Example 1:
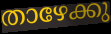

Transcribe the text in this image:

താഴേക്കു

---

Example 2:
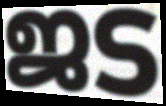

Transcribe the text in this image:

ജട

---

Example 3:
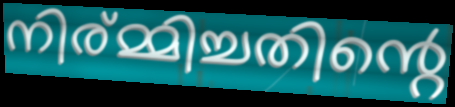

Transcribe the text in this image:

നിര്മ്മിച്ചതിന്റെ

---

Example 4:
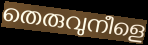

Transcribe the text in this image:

തെരുവുനീളെ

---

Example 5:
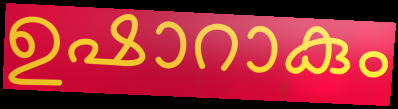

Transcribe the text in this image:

ഉഷാറാകും